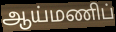
ஆய்மணிப்